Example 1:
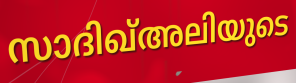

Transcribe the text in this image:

സാദിഖ്അലിയുടെ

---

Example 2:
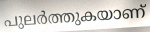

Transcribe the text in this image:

പുലർത്തുകയാണ്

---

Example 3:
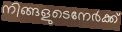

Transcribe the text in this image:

നിങ്ങളുടെനേർക്ക്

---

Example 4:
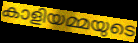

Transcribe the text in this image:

കാളിയമ്മയുടെ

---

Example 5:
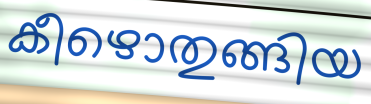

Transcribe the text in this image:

കീഴൊതുങ്ങിയ